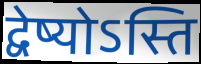
द्वेष्योऽस्ति